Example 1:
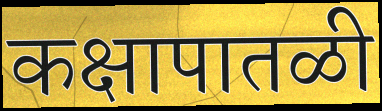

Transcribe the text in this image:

कक्षापातळी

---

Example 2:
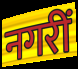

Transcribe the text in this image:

नगरीं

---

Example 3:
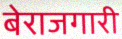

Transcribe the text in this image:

बेराजगारी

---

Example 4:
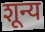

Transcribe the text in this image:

शून्य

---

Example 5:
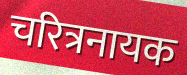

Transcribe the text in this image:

चरित्रनायक